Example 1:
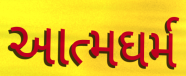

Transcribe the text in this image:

આત્મઘર્મ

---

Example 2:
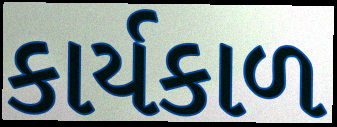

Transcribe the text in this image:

કાર્યકાળ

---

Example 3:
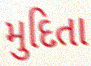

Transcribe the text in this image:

મુદિતા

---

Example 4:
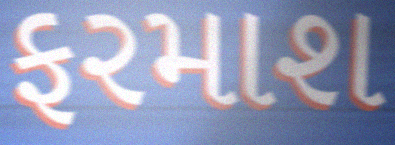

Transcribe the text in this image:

ફરમાશ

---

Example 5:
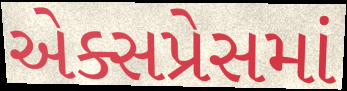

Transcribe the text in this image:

એક્સપ્રેસમાં